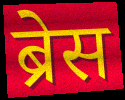
ब्रेस